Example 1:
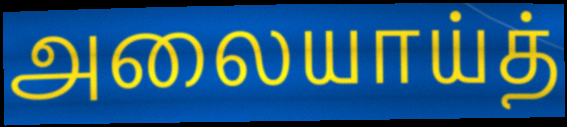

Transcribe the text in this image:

அலையாய்த்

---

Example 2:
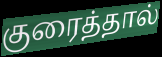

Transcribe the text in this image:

குரைத்தால்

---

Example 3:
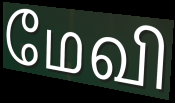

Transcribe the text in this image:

மேவி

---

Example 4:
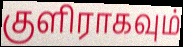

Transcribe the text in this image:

குளிராகவும்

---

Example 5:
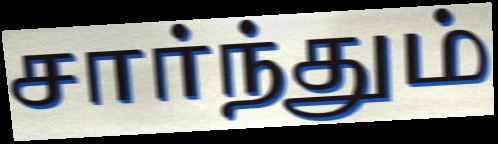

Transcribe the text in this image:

சார்ந்தும்